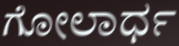
ಗೋಲಾರ್ಧ